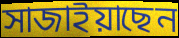
সাজাইয়াছেন